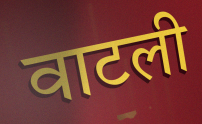
वाटली